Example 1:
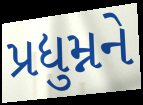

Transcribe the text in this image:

પ્રદ્યુમ્નને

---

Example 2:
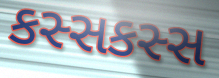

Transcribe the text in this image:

કસ્સકસ્સ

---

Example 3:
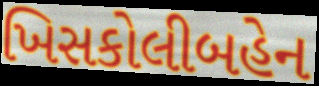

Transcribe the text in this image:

ખિસકોલીબહેન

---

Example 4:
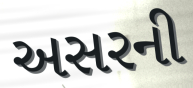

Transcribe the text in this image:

અસરની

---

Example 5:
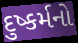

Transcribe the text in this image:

દુષ્કર્મનો